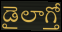
డైలాగ్తో